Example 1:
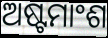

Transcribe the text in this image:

ଅଷ୍ଟମାଂଶ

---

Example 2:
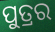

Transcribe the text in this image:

ପୁତ୍ରର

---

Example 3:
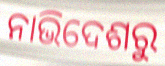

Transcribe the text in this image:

ନାଭିଦେଶରୁ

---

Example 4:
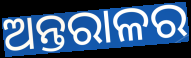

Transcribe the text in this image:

ଅନ୍ତରାଳର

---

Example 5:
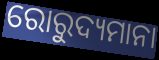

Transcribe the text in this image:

ରୋରୁଦ୍ୟମାନା